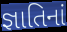
જ્ઞાતિનાં